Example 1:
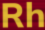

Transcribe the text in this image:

Rh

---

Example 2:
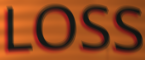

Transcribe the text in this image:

LOSS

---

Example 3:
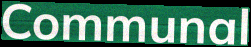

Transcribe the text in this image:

Communal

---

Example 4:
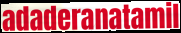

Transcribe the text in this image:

adaderanatamil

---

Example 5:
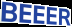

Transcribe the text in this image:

BEEER